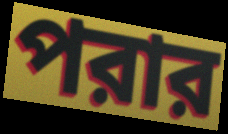
পরার